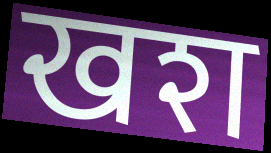
खश